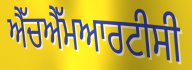
ਐੱਚਐੱਮਆਰਟੀਸੀ